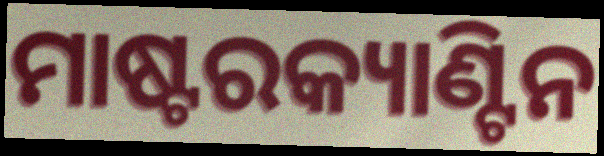
ମାଷ୍ଟରକ୍ୟାଣ୍ଟିନ